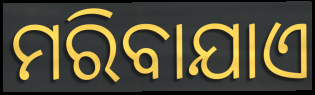
ମରିବାଯାଏ